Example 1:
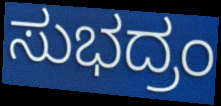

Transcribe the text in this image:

ಸುಭದ್ರಂ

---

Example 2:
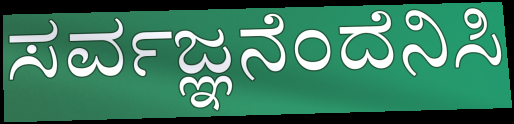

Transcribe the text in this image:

ಸರ್ವಜ್ಞನೆಂದೆನಿಸಿ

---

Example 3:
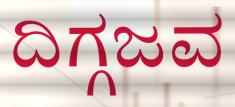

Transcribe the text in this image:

ದಿಗ್ಗಜವ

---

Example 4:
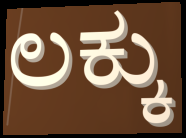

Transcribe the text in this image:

ಲಕ್ಕು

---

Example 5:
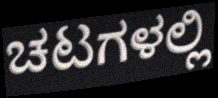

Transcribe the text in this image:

ಚಟಗಳಲ್ಲಿ